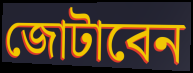
জোটাবেন